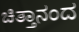
ಚಿತ್ತಾನಂದ